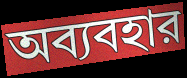
অব্যবহার